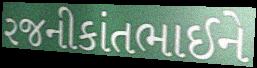
રજનીકાંતભાઈને